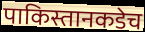
पाकिस्तानकडेच